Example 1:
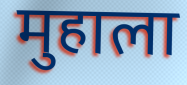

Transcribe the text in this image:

मुहाला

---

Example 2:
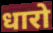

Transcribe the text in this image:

धारो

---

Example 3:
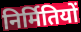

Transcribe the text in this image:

निर्मितियों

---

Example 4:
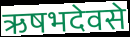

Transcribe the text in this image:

ऋषभदेवसे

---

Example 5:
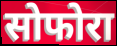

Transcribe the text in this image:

सोफोरा